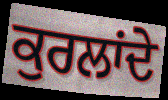
ਕੁਰਲਾਂਦੇ